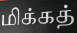
மிக்கத்